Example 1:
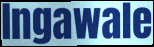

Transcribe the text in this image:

Ingawale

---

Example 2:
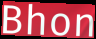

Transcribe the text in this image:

Bhon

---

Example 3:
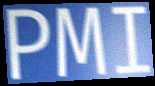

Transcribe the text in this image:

PMI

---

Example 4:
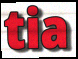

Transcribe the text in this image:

tia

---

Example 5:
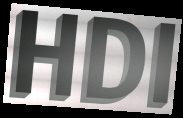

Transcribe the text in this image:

HDI